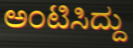
ಅಂಟಿಸಿದ್ದು